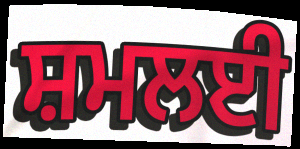
ਸ਼ਮਲਈ